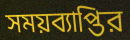
সময়ব্যাপ্তির